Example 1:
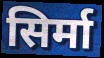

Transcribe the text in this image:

सिर्मा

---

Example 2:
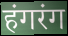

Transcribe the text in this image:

हंगरंग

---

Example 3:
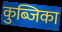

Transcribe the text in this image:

कुब्जिका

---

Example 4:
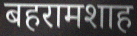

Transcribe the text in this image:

बहरामशाह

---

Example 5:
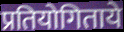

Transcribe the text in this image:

प्रतियोगिताये